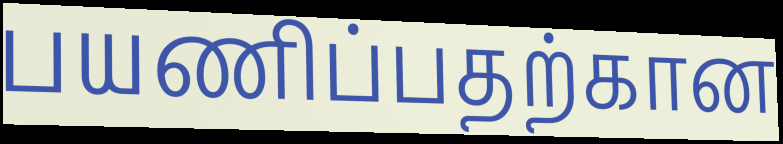
பயணிப்பதற்கான